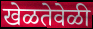
खेळतेवेळी